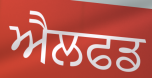
ਐਲਫਡ